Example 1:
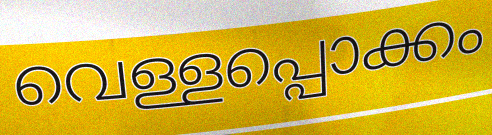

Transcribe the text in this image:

വെള്ളപ്പൊക്കം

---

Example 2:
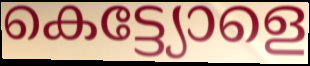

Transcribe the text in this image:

കെട്ട്യോളെ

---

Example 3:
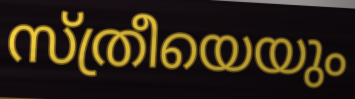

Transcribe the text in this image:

സ്ത്രീയെയും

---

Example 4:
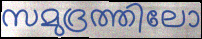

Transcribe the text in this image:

സമുദ്രത്തിലോ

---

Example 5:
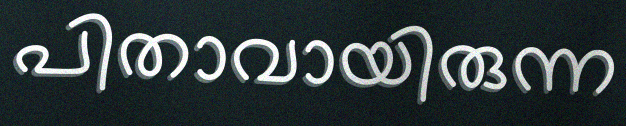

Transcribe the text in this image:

പിതാവായിരുന്ന